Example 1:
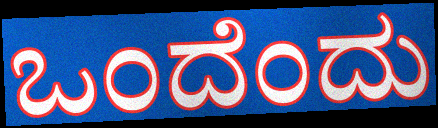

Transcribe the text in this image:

ಒಂದೆಂದು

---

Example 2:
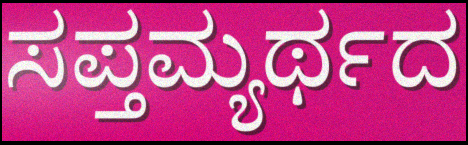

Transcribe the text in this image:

ಸಪ್ತಮ್ಯರ್ಥದ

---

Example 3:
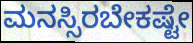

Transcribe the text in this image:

ಮನಸ್ಸಿರಬೇಕಷ್ಟೇ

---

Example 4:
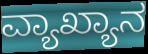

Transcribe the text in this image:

ವ್ಯಾಖ್ಯಾನ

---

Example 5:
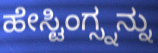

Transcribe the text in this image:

ಹೇಸ್ಟಿಂಗ್ಸ್ನನ್ನು